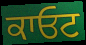
ਕਾਓਟ